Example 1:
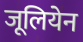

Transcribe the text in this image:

जूलियेन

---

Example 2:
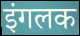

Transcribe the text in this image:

इंगलक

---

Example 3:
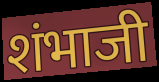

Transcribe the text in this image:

शंभाजी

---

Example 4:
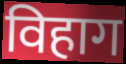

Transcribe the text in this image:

विहाग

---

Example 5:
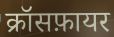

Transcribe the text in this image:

क्रॉसफ़ायर